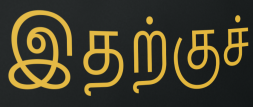
இதற்குச்